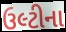
ઉલ્ટીના